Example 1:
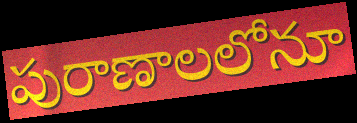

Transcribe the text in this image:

పురాణాలలోనూ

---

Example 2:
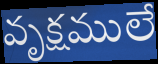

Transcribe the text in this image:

వృక్షములే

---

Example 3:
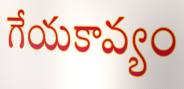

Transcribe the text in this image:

గేయకావ్యం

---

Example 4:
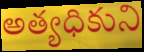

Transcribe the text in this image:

అత్యధికుని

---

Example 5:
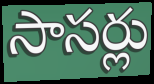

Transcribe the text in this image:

సాసర్లు